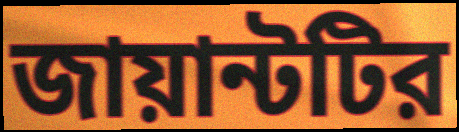
জায়ান্টটির